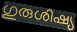
ഗുരുശിഷ്യ